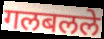
गलबलले